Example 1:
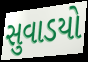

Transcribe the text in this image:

સુવાડયો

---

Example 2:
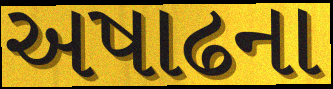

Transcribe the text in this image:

અષાઢના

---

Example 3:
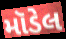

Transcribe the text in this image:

મૉડેલ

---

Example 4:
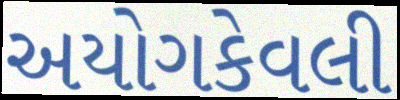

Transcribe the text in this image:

અયોગકેવલી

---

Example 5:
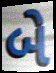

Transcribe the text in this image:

બે